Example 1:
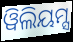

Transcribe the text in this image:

ୱିଲିୟମ୍ସ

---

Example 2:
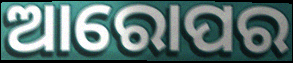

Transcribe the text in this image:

ଆରୋପର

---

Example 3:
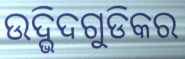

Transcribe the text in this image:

ଉଦ୍ଭିଦଗୁଡିକର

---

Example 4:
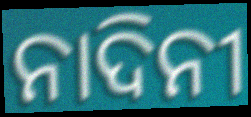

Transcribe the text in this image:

ନାଦିନୀ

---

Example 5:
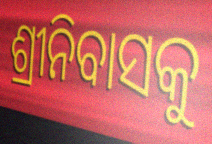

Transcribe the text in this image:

ଶ୍ରୀନିବାସକୁ